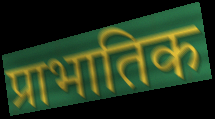
प्राभातिक